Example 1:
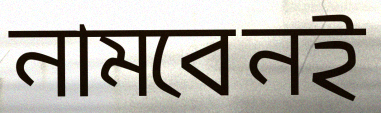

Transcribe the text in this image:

নামবেনই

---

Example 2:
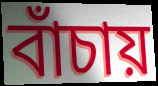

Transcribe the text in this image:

বাঁচায়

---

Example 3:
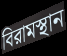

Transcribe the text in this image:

বিরামস্থান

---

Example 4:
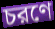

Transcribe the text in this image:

চরণে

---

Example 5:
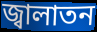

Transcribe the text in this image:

জ্বালাতন